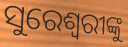
ସୁରେଶ୍ୱରୀଙ୍କୁ